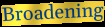
Broadening